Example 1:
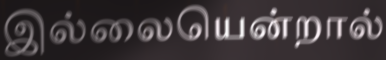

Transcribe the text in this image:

இல்லையென்றால்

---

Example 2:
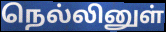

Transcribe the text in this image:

நெல்லினுள்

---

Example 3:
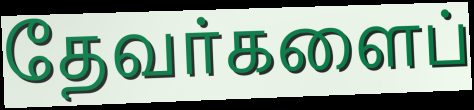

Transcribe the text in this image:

தேவர்களைப்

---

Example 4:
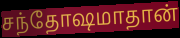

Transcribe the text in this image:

சந்தோஷமாதான்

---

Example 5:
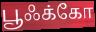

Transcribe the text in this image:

பூஃக்கோ